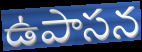
ఉపాసన